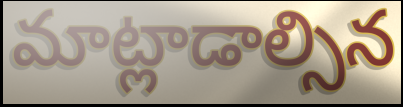
మాట్లాడాల్సిన